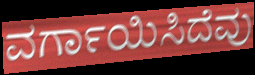
ವರ್ಗಾಯಿಸಿದೆವು